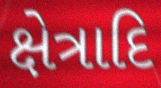
ક્ષેત્રાદિ